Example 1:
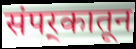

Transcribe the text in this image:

संपर्कातून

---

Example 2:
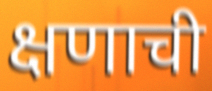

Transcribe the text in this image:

क्षणाची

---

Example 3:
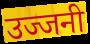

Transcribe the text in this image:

उज्जनी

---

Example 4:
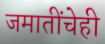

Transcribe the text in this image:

जमातींचेही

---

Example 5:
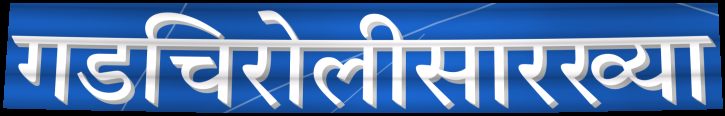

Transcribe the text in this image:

गडचिरोलीसारख्या